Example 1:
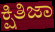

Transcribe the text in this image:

ಕ್ಷಿತಿಜಾ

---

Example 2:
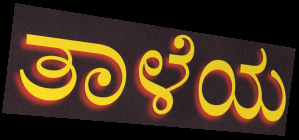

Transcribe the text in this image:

ತಾಳೆಯ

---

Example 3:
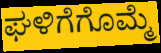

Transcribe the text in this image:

ಘಳಿಗೆಗೊಮ್ಮೆ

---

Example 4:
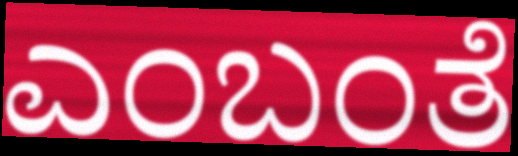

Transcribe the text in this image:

ಎಂಬಂತೆ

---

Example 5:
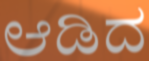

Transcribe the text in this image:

ಆಡಿದ